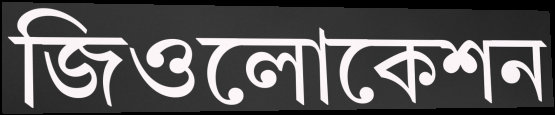
জিওলোকেশন